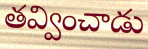
తవ్వించాడు